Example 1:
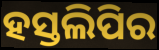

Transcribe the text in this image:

ହସ୍ତଲିପିର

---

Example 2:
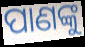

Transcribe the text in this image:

ପାଣଙ୍କୁ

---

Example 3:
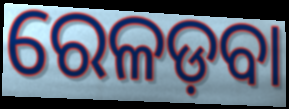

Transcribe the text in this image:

ରେଳଡ଼ବା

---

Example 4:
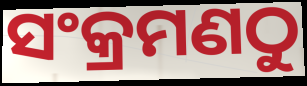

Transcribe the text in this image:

ସଂକ୍ରମଣଠୁ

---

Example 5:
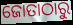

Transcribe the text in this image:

ଜୋତାଠାରୁ